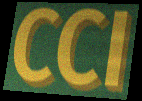
CCI